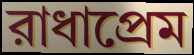
রাধাপ্রেম